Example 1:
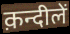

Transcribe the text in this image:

क़न्दीलें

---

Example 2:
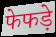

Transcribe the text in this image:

फेफड़े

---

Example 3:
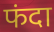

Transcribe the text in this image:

फंदा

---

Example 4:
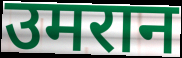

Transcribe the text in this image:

उमरान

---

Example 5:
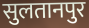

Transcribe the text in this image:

सुलतानपुर